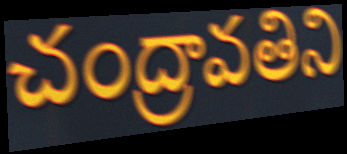
చంద్రావతిని